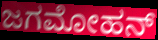
ಜಗಮೋಹನ್